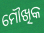
ମୌଖିକ